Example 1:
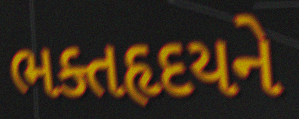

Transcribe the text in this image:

ભક્તહૃદયને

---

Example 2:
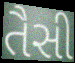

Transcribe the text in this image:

તૈસી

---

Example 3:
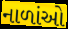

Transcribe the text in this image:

નાળાંઓ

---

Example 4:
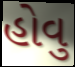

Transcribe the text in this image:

હોવુ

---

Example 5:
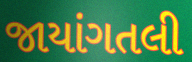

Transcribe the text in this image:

જાયાંગતલી